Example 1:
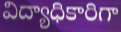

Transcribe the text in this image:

విద్యాధికారిగా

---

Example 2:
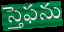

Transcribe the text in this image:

స్తెఫను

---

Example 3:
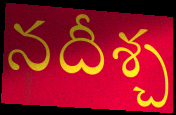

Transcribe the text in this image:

నదీశ్చ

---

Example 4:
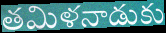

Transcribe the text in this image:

తమిళనాడుకు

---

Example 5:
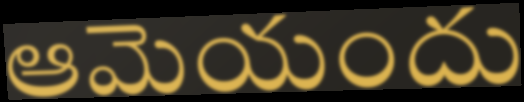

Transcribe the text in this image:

ఆమెయందు